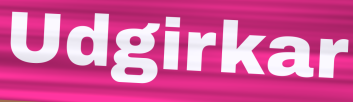
Udgirkar